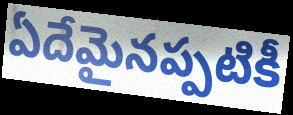
ఏదేమైనప్పటికీ